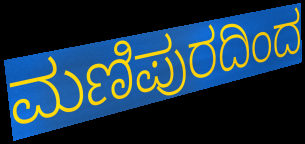
ಮಣಿಪುರದಿಂದ